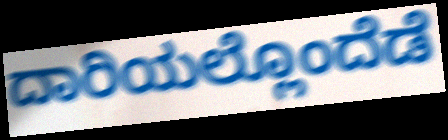
ದಾರಿಯಲ್ಲೊಂದೆಡೆ